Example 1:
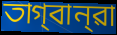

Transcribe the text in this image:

তাগ্‌বান্‌ৱা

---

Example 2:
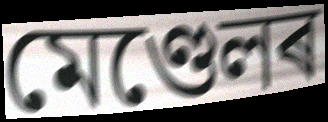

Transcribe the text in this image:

মেণ্ডেলৰ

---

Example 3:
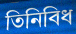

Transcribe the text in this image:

তিনিবিধ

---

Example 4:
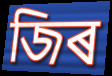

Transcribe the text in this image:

জিৰ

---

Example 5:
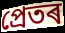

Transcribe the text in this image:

প্ৰেতৰ